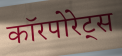
कॉरपोरेट्स